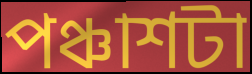
পঞ্চাশটা